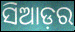
ସିଆଡ଼ର